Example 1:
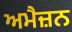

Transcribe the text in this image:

ਅਮੈਜ਼ਨ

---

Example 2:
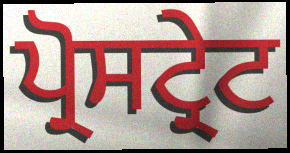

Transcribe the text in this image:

ਪ੍ਰੋਸਟ੍ਰੇਟ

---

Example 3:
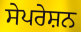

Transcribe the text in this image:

ਸੇਪਰੇਸ਼ਨ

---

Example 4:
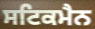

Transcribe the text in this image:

ਸਟਿਕਮੈਨ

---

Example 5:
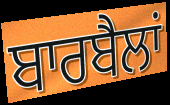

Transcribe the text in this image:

ਬਾਰਬੈਲਾਂ